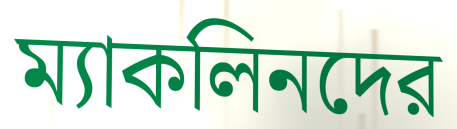
ম্যাকলিনদের